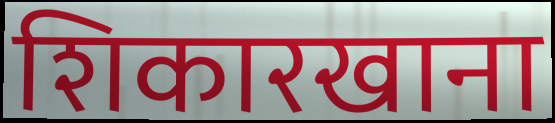
शिकारखाना